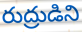
రుద్రుడిని